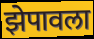
झेपावला